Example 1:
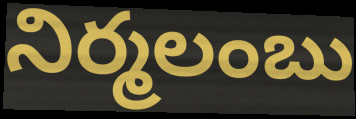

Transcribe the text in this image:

నిర్మలంబు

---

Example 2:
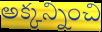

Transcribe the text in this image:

అక్కన్నించి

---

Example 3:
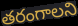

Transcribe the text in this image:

తరంగాలని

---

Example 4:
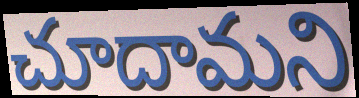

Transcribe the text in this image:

చూదామని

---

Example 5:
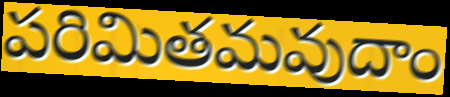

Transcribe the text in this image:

పరిమితమవుదాం